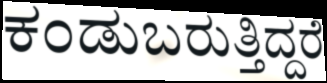
ಕಂಡುಬರುತ್ತಿದ್ದರೆ